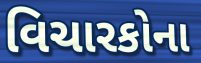
વિચારકોના